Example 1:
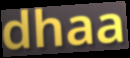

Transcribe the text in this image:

dhaa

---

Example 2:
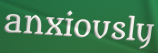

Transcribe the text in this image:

anxiously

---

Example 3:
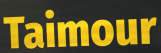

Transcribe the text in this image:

Taimour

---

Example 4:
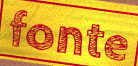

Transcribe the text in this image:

fonte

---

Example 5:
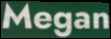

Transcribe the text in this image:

Megan